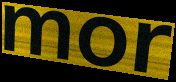
mor